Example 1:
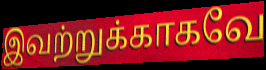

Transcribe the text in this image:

இவற்றுக்காகவே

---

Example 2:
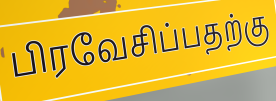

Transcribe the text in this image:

பிரவேசிப்பதற்கு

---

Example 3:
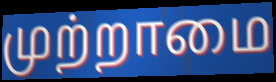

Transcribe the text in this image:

முற்றாமை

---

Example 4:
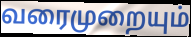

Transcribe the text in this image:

வரைமுறையும்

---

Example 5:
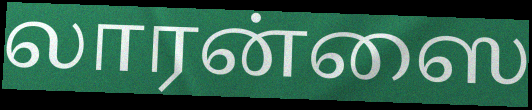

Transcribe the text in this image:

லாரன்ஸை